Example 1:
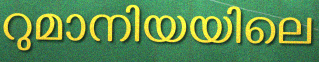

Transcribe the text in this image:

റുമാനിയയിലെ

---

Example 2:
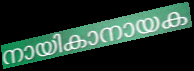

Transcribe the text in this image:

നായികാനായക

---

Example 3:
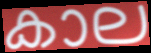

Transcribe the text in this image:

കാല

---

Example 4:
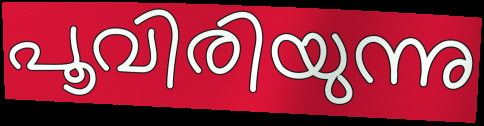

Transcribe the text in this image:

പൂവിരിയുന്നു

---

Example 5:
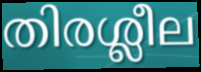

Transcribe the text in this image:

തിരശ്ലീല